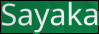
Sayaka